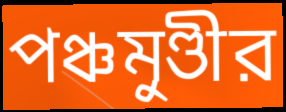
পঞ্চমুণ্ডীর